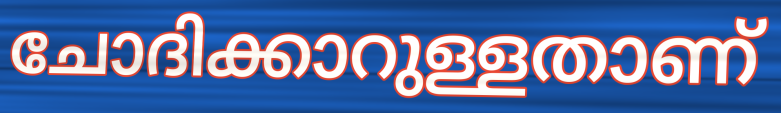
ചോദിക്കാറുള്ളതാണ്